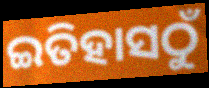
ଇତିହାସଠୁଁ